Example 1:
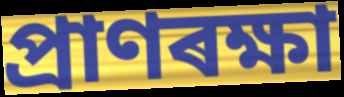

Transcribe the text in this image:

প্ৰাণৰক্ষা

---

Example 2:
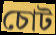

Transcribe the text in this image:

চোট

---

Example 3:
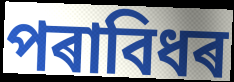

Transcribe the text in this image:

পৰাবিধৰ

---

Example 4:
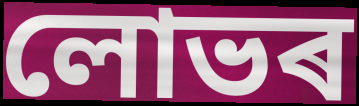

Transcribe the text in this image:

লোভৰ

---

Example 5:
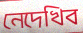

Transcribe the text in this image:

নেদেখিব